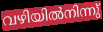
വഴിയിൽനിന്നു്